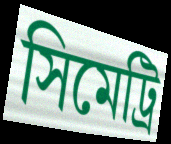
সিমেট্রি